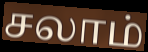
சலாம்